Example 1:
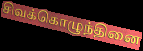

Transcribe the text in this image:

சிவக்கொழுந்தினை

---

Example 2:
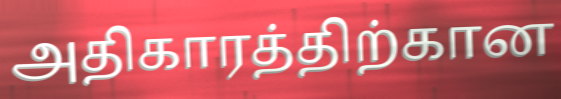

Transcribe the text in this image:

அதிகாரத்திற்கான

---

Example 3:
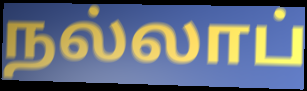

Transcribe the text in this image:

நல்லாப்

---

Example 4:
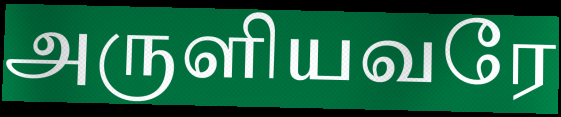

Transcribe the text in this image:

அருளியவரே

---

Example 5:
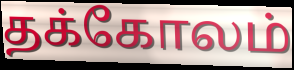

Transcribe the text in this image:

தக்கோலம்